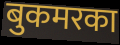
बुकमरका